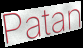
Patan